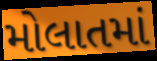
મોલાતમાં